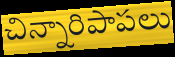
చిన్నారిపాపలు